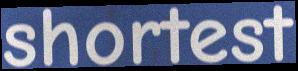
shortest